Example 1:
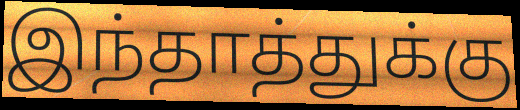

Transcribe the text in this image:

இந்தாத்துக்கு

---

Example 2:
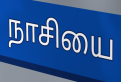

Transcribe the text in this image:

நாசியை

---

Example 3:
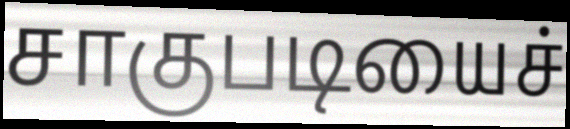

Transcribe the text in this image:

சாகுபடியைச்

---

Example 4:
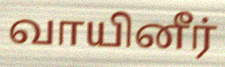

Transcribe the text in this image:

வாயினீர்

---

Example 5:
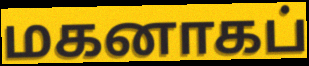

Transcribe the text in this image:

மகனாகப்